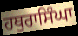
ਹਥੁਰਾਸਿੰਘਾ